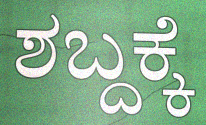
ಶಬ್ದಕ್ಕೆ